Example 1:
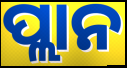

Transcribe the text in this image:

ପ୍ଲାନ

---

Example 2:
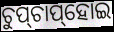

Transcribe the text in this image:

ଚୁପ୍‌ଚାପ୍‌ହୋଇ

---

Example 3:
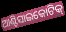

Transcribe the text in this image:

ଆଣ୍ଟିସାଇକୋଟିକ୍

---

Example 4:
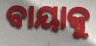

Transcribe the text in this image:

ବାୟାକୁ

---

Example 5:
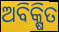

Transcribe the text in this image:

ଅବିକ୍ଷିତ